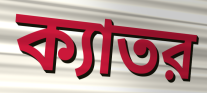
ক্যাতর